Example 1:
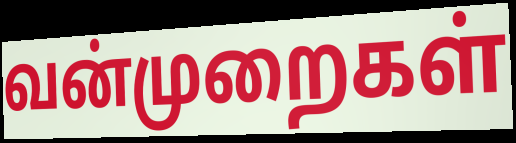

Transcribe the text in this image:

வன்முறைகள்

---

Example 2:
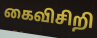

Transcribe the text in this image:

கைவிசிறி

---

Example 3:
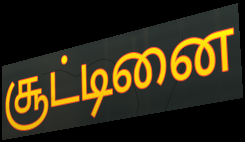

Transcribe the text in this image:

சூட்டினை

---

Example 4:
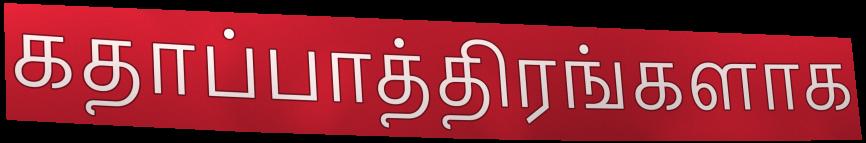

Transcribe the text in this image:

கதாப்பாத்திரங்களாக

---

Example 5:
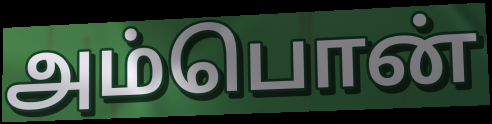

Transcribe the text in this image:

அம்பொன்